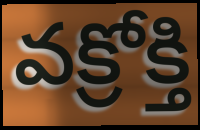
వక్రోక్తి